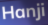
Hanji